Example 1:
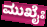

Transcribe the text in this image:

ಮುಖೈಃ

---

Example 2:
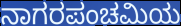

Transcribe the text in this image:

ನಾಗರಪಂಚಮಿಯ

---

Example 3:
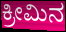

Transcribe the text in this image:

ಕ್ರೀಮಿನ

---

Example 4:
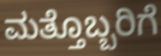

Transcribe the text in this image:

ಮತ್ತೊಬ್ಬರಿಗೆ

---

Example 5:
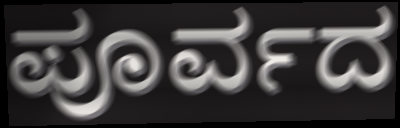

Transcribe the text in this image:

ಪೂರ್ವದ